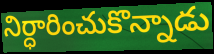
నిర్ధారించుకొన్నాడు